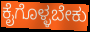
ಕೈಗೊಳ್ಳಬೇಕು